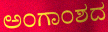
ಅಂಗಾಂಶದ